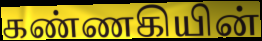
கண்ணகியின்